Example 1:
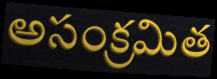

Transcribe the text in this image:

అసంక్రమిత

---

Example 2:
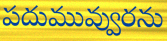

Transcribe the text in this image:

పదుమువ్వురను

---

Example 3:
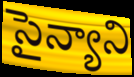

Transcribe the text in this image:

సైన్యాని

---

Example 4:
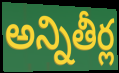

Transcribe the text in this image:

అన్నితీర్ల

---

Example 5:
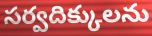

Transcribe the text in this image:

సర్వదిక్కులను